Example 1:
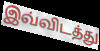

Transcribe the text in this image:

இவ்விடத்து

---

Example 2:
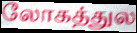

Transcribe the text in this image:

லோகத்துல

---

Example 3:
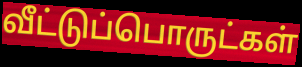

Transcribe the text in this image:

வீட்டுப்பொருட்கள்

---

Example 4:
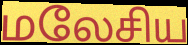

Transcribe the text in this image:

மலேசிய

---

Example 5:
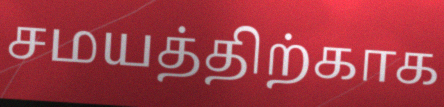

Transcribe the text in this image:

சமயத்திற்காக